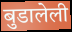
बुडालेली